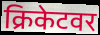
क्रिकेटवर